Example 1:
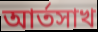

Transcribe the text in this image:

আর্তসাখ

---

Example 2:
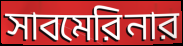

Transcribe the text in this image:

সাবমেরিনার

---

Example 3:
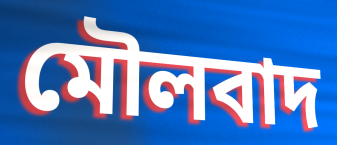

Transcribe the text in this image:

মৌলবাদ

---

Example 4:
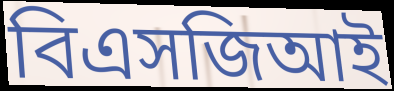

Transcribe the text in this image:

বিএসজিআই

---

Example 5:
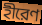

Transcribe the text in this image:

হীরেণ